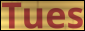
Tues